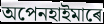
অপেনহাইমাৰে